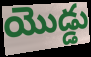
యొడ్డు